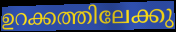
ഉറക്കത്തിലേക്കു